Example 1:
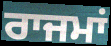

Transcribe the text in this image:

ਰਾਜਮਾਂ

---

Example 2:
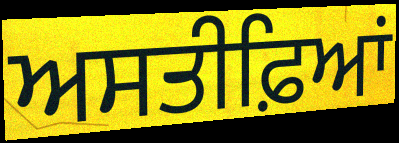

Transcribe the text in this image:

ਅਸਤੀਫ਼ਿਆਂ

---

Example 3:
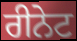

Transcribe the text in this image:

ਰੀਨੇਟ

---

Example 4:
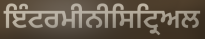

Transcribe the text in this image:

ਇੰਟਰਮੀਨੀਸਿਟ੍ਰਿਅਲ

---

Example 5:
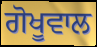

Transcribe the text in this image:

ਗੋਖੂਵਾਲ